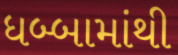
ધબ્બામાંથી